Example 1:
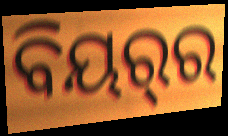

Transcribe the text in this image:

ବିୟର୍‌ର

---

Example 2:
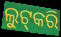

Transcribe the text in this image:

ଲୁଟ୍‌କରି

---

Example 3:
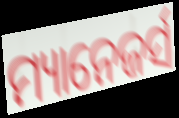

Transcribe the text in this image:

ମ୍ୟାନେଜର୍ସ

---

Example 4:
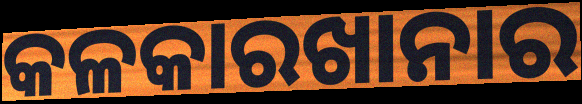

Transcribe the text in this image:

କଳକାରଖାନାର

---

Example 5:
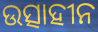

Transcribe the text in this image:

ଉତ୍ସାହୀନ